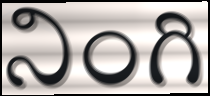
నింగి